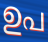
ഉപ